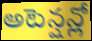
అటెన్షన్లో